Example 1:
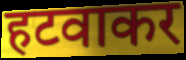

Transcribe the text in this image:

हटवाकर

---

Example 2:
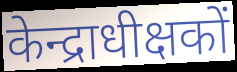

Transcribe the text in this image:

केन्द्राधीक्षकों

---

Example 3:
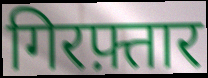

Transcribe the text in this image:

गिरफ़्तार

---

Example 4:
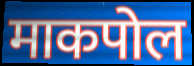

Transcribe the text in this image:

माकपोल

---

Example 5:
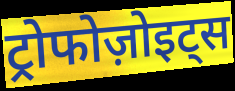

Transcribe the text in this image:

ट्रोफोज़ोइट्स